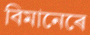
বিমানেৰে